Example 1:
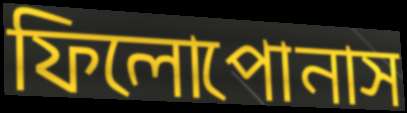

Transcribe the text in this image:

ফিলোপোনাস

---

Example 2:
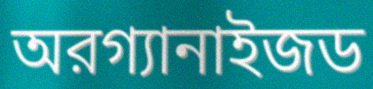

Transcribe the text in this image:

অরগ্যানাইজড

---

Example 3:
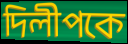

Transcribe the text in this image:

দিলীপকে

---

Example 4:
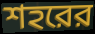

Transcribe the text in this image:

শহরের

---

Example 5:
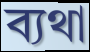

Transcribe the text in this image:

ব্যথা